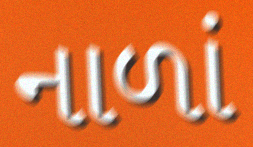
નાળાં